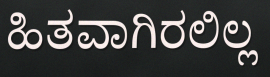
ಹಿತವಾಗಿರಲಿಲ್ಲ